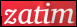
zatim